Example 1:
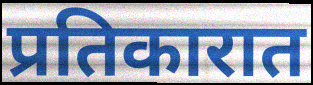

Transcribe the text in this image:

प्रतिकारात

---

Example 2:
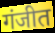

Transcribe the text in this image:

गंजीत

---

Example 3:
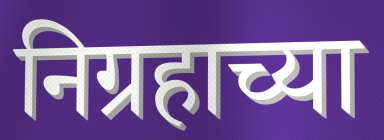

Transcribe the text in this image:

निग्रहाच्या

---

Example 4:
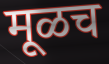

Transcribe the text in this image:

मूळच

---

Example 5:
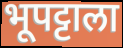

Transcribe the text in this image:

भूपट्टाला